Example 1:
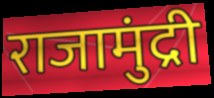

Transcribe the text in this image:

राजामुंद्री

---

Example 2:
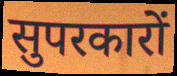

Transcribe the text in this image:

सुपरकारों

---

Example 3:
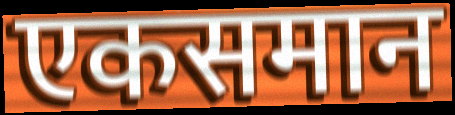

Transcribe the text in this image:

एकसमान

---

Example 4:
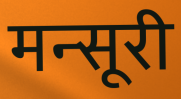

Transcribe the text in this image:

मन्सूरी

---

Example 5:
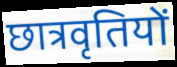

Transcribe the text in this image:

छात्रवृतियों